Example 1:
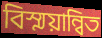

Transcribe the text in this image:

বিস্ময়ান্বিত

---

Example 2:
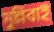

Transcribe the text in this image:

মুন্নিবাই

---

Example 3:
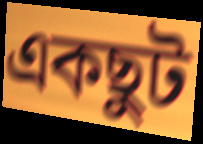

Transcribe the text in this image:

একছুট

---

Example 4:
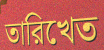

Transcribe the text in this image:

তারিখেত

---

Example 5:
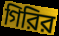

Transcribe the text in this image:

গিরির